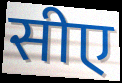
सीए